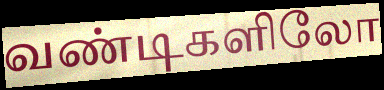
வண்டிகளிலோ